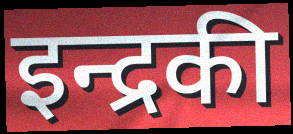
इन्द्रकी